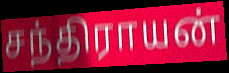
சந்திராயன்